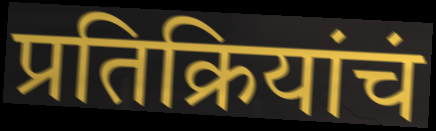
प्रतिक्रियांचं